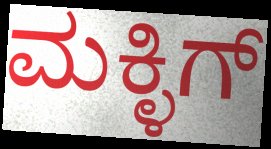
ಮಕ್ಳಿಗ್